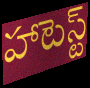
హాటెస్ట్